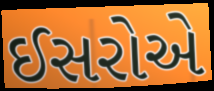
ઈસરોએ